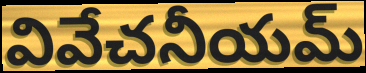
వివేచనీయమ్